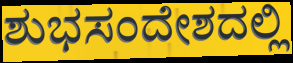
ಶುಭಸಂದೇಶದಲ್ಲಿ